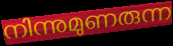
നിന്നുമുണരുന്ന